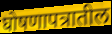
घोषणापत्रातील